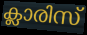
ക്ലാരിസ്